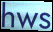
hws